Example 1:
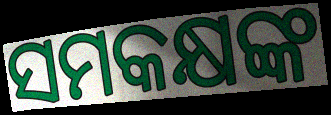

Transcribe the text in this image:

ସମକକ୍ଷଙ୍କ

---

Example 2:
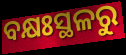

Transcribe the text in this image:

ବକ୍ଷଃସ୍ଥଳରୁ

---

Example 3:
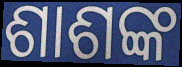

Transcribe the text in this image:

ଶାଶଙ୍କ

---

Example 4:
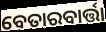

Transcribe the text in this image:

ବେତାରବାର୍ତ୍ତା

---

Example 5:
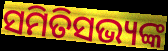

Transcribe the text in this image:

ସମିତିସଭ୍ୟଙ୍କ